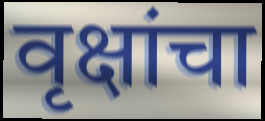
वृक्षांचा